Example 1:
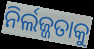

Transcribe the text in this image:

ନିର୍ଲଜ୍ଜତାକୁ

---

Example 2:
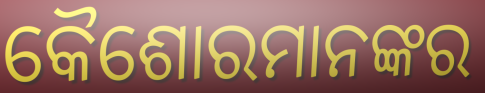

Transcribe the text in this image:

କୈଶୋରମାନଙ୍କର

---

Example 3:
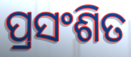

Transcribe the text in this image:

ପ୍ରସଂଶିତ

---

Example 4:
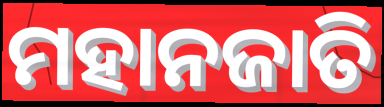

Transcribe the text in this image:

ମହାନଜାତି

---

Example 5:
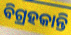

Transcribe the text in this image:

ବିଗ୍ରହକାନ୍ତି